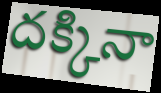
దక్కినా